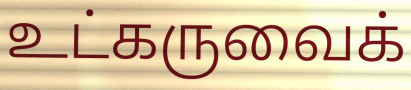
உட்கருவைக்